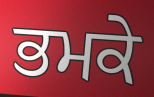
ਭਮਕੇ